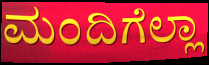
ಮಂದಿಗೆಲ್ಲಾ